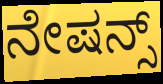
ನೇಷನ್ಸ್